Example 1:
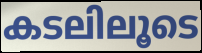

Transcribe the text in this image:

കടലിലൂടെ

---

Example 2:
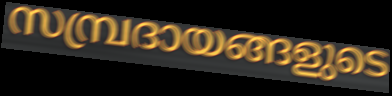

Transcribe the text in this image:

സമ്പ്രദായങ്ങളുടെ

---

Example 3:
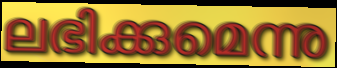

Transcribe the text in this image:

ലഭിക്കുമെന്നു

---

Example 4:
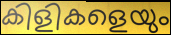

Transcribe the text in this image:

കിളികളെയും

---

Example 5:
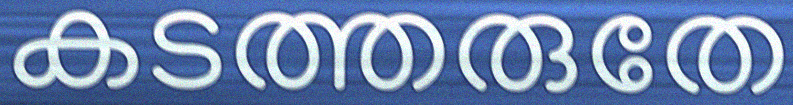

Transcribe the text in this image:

കടത്തരുതേ